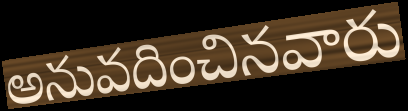
అనువదించినవారు